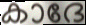
കാദേ